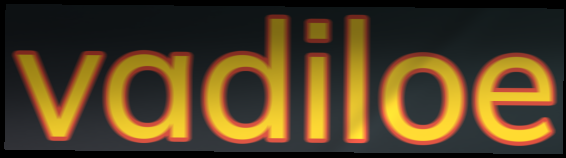
vadiloe